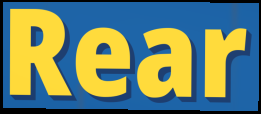
Rear